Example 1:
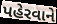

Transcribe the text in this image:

પહેરવાને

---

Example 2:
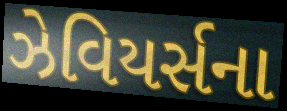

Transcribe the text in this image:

ઝેવિયર્સના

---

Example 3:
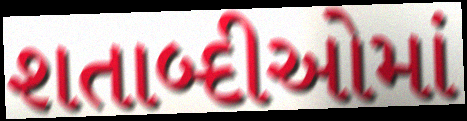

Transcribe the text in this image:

શતાબ્દીઓમાં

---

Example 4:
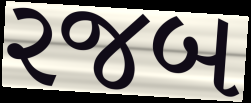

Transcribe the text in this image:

રજબ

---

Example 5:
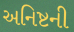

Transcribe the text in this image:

અનિષ્ટની